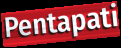
Pentapati